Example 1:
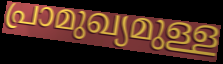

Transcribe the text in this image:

പ്രാമുഖ്യമുള്ള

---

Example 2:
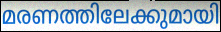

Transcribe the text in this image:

മരണത്തിലേക്കുമായി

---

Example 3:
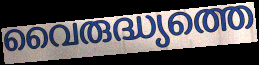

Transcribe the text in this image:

വൈരുദ്ധ്യത്തെ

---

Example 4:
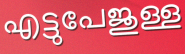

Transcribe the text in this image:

എട്ടുപേജുള്ള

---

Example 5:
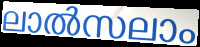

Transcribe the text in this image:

ലാൽസലാം